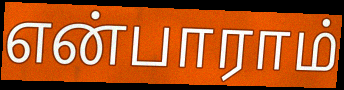
என்பாராம்